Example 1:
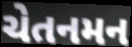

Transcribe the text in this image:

ચેતનમન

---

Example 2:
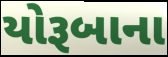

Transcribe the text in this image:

યોરૂબાના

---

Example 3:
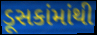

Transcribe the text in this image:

ડૂસકાંમાંથી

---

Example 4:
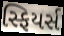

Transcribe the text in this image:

સ્ફિયર્સ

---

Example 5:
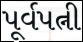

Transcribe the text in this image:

પૂર્વપત્ની